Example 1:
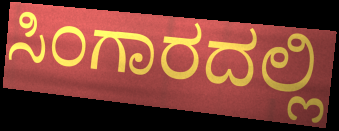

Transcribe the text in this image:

ಸಿಂಗಾರದಲ್ಲಿ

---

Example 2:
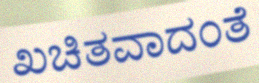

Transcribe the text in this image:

ಖಚಿತವಾದಂತೆ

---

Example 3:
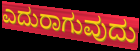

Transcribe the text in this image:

ಎದುರಾಗುವುದು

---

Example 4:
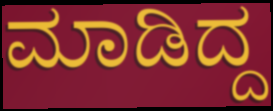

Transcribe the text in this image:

ಮಾಡಿದ್ದ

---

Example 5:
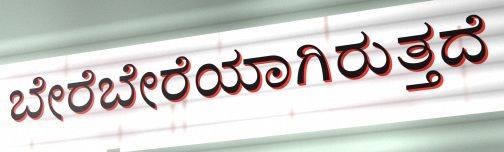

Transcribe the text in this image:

ಬೇರೆಬೇರೆಯಾಗಿರುತ್ತದೆ